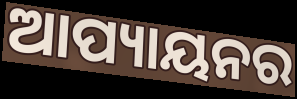
ଆପ୍ୟାୟନର